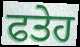
ਫਤੇਹ